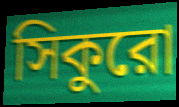
সিকুরো